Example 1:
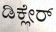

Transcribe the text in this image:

ಡಿಕ್ಲೇರ್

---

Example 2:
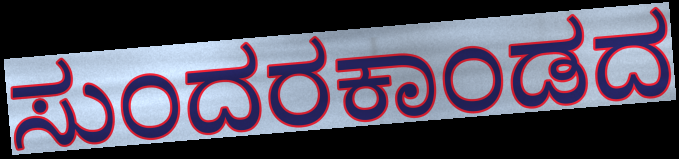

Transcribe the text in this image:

ಸುಂದರಕಾಂಡದ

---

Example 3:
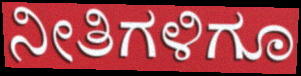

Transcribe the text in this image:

ನೀತಿಗಳಿಗೂ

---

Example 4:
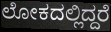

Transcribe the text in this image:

ಲೋಕದಲ್ಲಿದ್ದರೆ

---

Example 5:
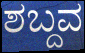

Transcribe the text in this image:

ಶಬ್ದವ